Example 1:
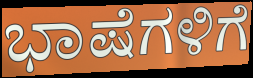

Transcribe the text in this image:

ಭಾಷೆಗಳಿಗೆ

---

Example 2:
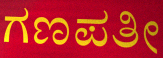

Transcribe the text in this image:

ಗಣಪತೀ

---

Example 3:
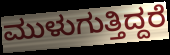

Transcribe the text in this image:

ಮುಳುಗುತ್ತಿದ್ದರೆ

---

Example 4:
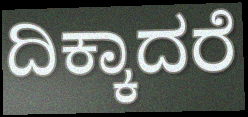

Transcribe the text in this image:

ದಿಕ್ಕಾದರೆ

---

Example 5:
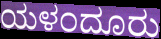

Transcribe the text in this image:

ಯಳಂದೂರು